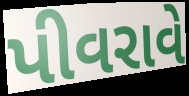
પીવરાવે